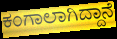
ಕಂಗಾಲಾಗಿದ್ದಾನೆ